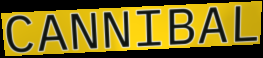
CANNIBAL